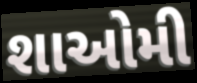
શાઓમી